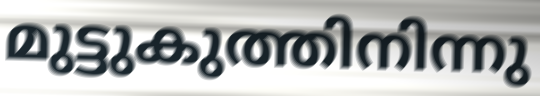
മുട്ടുകുത്തിനിന്നു